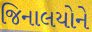
જિનાલયોને